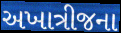
અખાત્રીજના